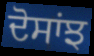
ਦੋਸਾਂਝ